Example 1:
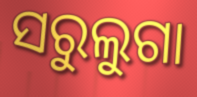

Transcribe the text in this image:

ସରୁଲୁଗା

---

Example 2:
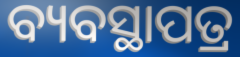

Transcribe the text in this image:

ବ୍ୟବସ୍ଥାପତ୍ର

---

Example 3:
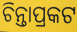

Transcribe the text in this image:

ଚିନ୍ତାପ୍ରକଟ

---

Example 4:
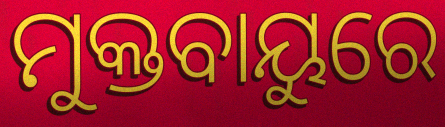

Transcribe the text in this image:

ମୁକ୍ତବାୟୁରେ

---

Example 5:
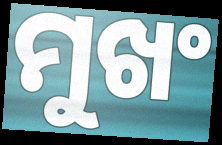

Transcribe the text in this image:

ମୁଖଂ